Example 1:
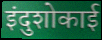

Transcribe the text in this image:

इंदुशोकाई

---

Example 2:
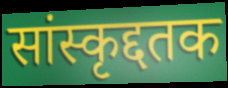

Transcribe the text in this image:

सांस्कृद्दतक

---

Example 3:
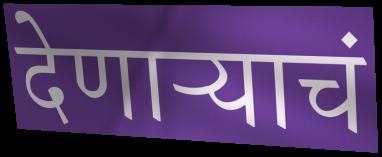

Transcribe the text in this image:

देणाऱ्याचं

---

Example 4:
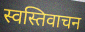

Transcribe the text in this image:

स्वस्तिवाचन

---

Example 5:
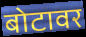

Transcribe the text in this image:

बोटावर